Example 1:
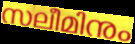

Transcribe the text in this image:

സലീമിനും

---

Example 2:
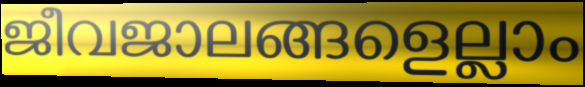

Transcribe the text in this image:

ജീവജാലങ്ങളെല്ലാം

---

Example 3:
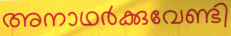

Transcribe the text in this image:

അനാഥർക്കുവേണ്ടി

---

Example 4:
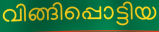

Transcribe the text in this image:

വിങ്ങിപ്പൊട്ടിയ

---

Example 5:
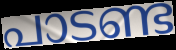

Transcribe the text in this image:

പാടണ്ട